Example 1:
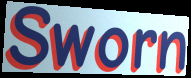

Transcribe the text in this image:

Sworn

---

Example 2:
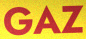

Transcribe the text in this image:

GAZ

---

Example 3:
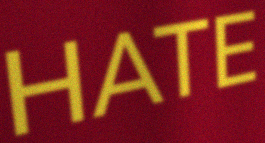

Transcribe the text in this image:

HATE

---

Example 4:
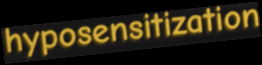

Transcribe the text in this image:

hyposensitization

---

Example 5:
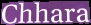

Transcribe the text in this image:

Chhara